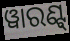
ୱାରଣ୍ଟ୍